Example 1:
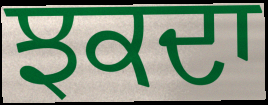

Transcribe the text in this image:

ਝਕਦਾ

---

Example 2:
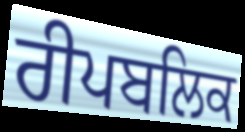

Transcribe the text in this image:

ਰੀਪਬਲਿਕ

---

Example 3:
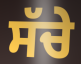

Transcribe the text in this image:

ਸੱਚੇ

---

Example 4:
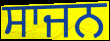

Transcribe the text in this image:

ਸਾਜਨ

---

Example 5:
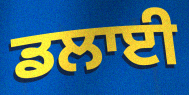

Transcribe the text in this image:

ਡਲਾਈ